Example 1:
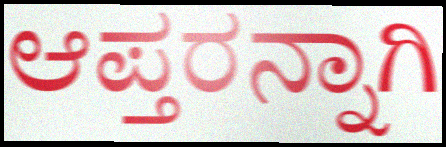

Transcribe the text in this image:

ಆಪ್ತರನ್ನಾಗಿ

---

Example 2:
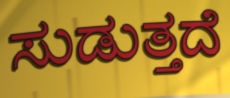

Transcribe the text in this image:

ಸುಡುತ್ತದೆ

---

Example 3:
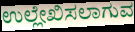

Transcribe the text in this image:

ಉಲ್ಲೇಖಿಸಲಾಗುವ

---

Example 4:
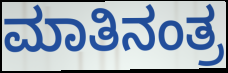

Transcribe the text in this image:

ಮಾತಿನಂತ್ರ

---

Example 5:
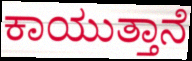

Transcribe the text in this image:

ಕಾಯುತ್ತಾನೆ